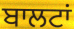
ਬਾਲਟਾਂ